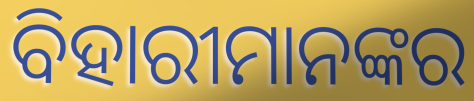
ବିହାରୀମାନଙ୍କର